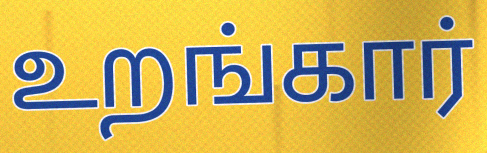
உறங்கார்